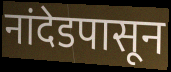
नांदेडपासून